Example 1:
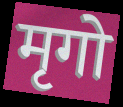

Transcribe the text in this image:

मृगो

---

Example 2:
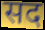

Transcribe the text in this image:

सद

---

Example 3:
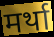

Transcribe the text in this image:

मर्था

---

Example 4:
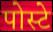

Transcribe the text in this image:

पोस्टे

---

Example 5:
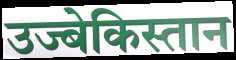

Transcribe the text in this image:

उज्बेकिस्तान